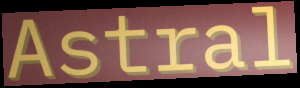
Astral